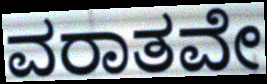
ವರಾತವೇ